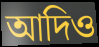
আদিও